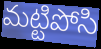
మట్టిపోసి